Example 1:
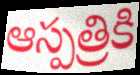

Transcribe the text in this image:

ఆస్పత్రికి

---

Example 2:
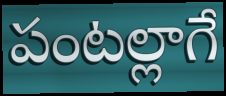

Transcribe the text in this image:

పంటల్లాగే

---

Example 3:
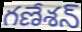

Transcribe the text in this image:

గణేశన్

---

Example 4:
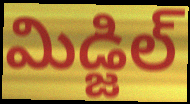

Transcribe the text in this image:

మిడ్జిల్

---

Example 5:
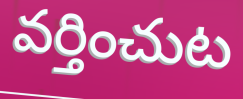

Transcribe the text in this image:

వర్తించుట